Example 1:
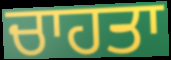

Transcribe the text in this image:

ਚਾਹਤਾ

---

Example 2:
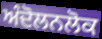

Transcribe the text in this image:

ਅੰਦੋਲਨਲੋਕ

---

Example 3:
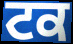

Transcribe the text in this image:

ਟਕ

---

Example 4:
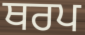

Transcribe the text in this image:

ਥਰਪ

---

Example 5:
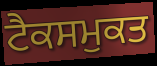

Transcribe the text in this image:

ਟੈਕਸਮੁਕਤ